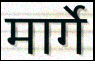
मार्गे